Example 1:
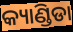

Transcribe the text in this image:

କ୍ୟାଣ୍ଡିଡା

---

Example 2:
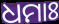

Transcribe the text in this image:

ଧମାଃ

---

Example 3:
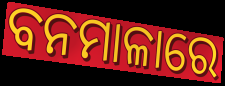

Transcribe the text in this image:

ବନମାଳାରେ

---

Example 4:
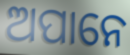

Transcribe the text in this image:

ଅପାନେ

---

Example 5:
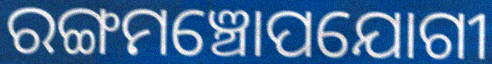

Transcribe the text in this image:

ରଙ୍ଗମଞ୍ଚୋପଯୋଗୀ